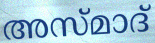
അസ്മാദ്